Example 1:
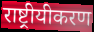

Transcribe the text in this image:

राष्ट्रीयीकरण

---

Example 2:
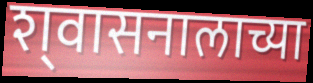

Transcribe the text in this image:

श्वासनालाच्या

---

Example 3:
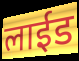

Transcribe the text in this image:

लाईड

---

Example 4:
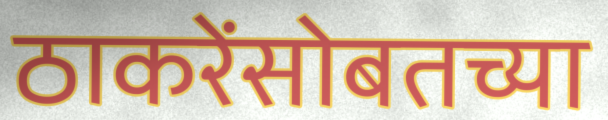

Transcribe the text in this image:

ठाकरेंसोबतच्या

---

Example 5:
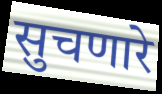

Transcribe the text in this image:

सुचणारे